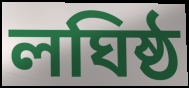
লঘিষ্ঠ